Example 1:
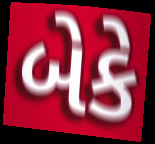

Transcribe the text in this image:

બેકે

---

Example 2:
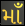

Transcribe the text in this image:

માઁ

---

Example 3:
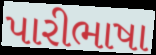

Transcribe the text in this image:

પારીભાષા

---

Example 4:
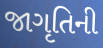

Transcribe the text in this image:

જાગૃતિની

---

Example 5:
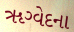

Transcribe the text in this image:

ૠગ્વેદના